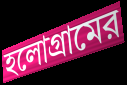
হলোগ্রামের